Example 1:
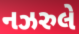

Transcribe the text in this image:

નઝરુલે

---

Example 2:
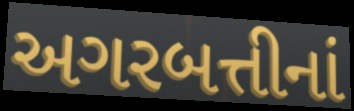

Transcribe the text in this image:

અગરબત્તીનાં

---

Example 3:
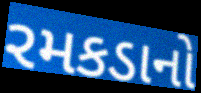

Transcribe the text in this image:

રમકડાનો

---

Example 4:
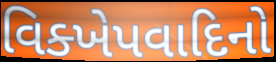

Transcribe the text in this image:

વિક્ખેપવાદિનો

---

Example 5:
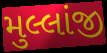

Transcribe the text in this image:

મુલ્લાંજી